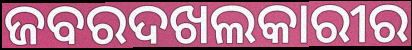
ଜବରଦଖଲକାରୀର